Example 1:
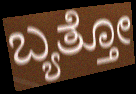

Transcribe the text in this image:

ಬ್ಯತ್ತೋ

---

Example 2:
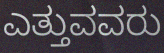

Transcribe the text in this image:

ಎತ್ತುವವರು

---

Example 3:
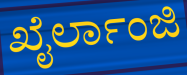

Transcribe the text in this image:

ಖೈರ್ಲಾಂಜಿ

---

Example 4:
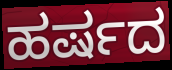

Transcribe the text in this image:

ಹರ್ಷದ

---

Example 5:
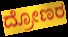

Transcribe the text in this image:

ದ್ರೋಣರ